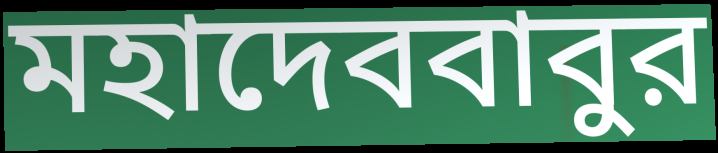
মহাদেববাবুর